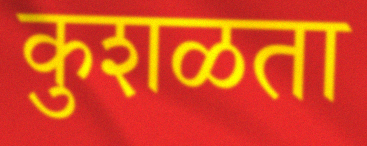
कुशळता